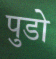
पुडो